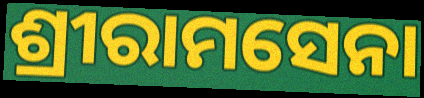
ଶ୍ରୀରାମସେନା